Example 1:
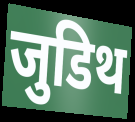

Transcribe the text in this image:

जुडिथ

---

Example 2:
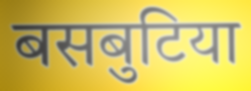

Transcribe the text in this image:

बसबुटिया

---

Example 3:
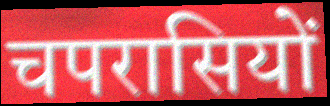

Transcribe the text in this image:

चपरासियों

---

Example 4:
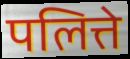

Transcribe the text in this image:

पलित्ते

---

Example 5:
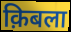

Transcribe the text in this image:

क़िबला